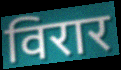
विरार